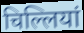
चिल्लियां